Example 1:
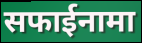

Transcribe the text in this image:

सफाईनामा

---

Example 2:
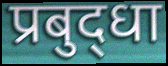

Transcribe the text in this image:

प्रबुद्धा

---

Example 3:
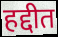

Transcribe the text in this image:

हद्दीत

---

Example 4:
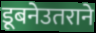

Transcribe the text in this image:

डूबनेउतराने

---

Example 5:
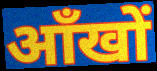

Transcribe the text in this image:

ऑंखों